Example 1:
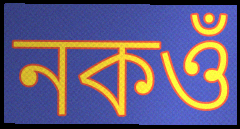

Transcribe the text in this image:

নকওঁ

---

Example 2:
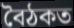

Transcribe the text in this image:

বৈঠকত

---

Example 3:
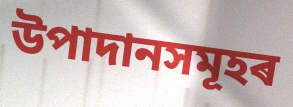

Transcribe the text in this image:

উপাদানসমূহৰ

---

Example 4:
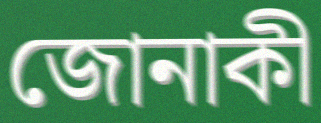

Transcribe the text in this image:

জোনাকী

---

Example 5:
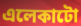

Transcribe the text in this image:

এলেকাটো